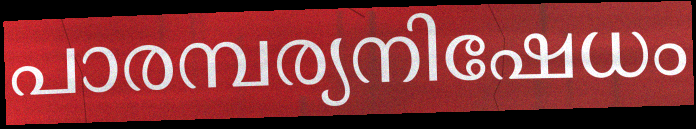
പാരമ്പര്യനിഷേധം